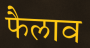
फैलाव